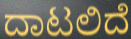
ದಾಟಲಿದೆ